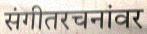
संगीतरचनांवर